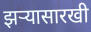
झर्‍यासारखी